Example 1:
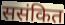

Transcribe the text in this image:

ससंकित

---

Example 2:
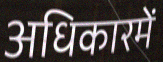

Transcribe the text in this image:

अधिकारमें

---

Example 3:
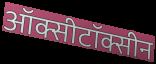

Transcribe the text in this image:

ऑक्सीटॉक्सीन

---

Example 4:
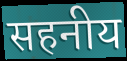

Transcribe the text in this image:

सहनीय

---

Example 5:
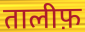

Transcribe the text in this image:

तालीफ़